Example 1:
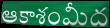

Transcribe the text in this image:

ఆకాశంమీద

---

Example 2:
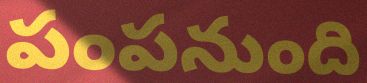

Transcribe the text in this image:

పంపనుంది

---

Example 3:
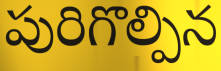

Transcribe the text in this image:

పురిగొల్పిన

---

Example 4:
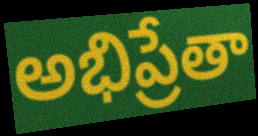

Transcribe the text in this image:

అభిప్రేతా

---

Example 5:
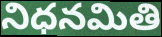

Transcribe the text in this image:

నిధనమితి